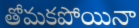
తోమకపోయినా